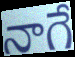
నాగే